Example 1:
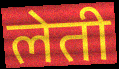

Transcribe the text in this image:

लेती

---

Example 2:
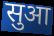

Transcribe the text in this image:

सुआ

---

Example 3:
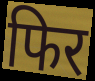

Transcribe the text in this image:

फिर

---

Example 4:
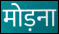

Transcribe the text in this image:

मोड़ना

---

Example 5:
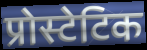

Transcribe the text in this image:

प्रोस्टेटिक